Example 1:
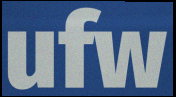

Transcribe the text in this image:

ufw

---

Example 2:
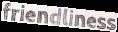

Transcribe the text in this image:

friendliness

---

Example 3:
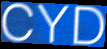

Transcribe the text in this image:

CYD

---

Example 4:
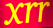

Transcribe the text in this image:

xrr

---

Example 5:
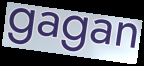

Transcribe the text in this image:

gagan